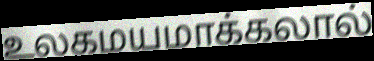
உலகமயமாக்கலால்